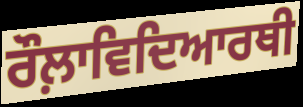
ਰੌਲ਼ਾਵਿਦਿਆਰਥੀ